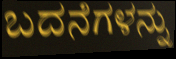
ಬದನೆಗಳನ್ನು